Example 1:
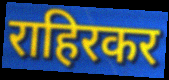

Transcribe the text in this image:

राहिरकर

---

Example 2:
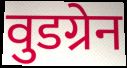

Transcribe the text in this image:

वुडग्रेन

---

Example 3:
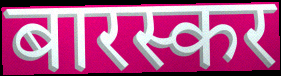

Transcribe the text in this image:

बारस्कर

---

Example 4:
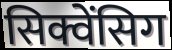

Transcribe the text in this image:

सिक्वेंसिग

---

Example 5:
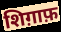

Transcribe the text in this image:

शिग़ाफ़